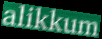
alikkum